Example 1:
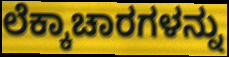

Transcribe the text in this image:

ಲೆಕ್ಕಾಚಾರಗಳನ್ನು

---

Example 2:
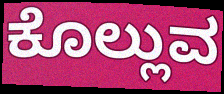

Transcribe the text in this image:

ಕೊಲ್ಲುವ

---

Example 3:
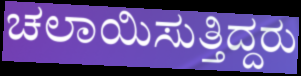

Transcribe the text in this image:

ಚಲಾಯಿಸುತ್ತಿದ್ದರು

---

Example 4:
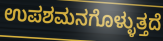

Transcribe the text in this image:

ಉಪಶಮನಗೊಳ್ಳುತ್ತದೆ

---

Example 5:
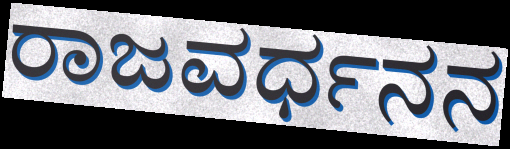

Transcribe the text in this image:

ರಾಜವರ್ಧನನ